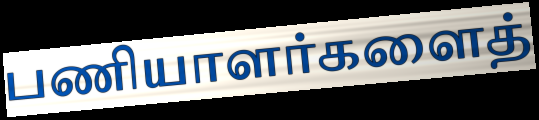
பணியாளர்களைத்